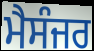
ਮੈਸੰਜਰ